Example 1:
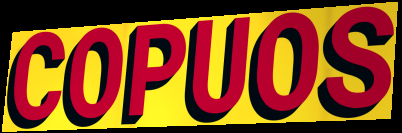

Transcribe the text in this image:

COPUOS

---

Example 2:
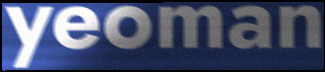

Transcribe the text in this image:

yeoman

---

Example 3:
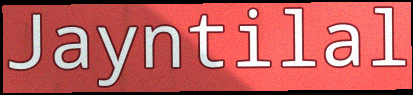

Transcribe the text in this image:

Jayntilal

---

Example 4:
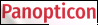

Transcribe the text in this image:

Panopticon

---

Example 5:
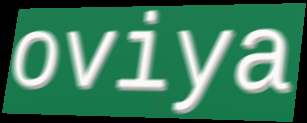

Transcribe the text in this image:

oviya